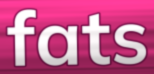
fats